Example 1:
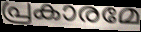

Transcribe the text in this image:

പ്രകാരമേ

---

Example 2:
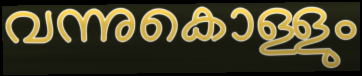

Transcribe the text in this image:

വന്നുകൊള്ളും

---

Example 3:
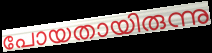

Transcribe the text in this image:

പോയതായിരുന്നു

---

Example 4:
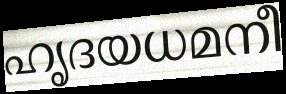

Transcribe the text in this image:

ഹൃദയധമനീ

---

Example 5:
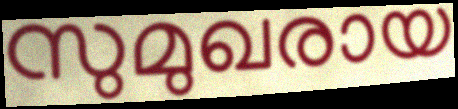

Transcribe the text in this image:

സുമുഖരായ